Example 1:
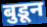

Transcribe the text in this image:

बुडून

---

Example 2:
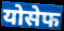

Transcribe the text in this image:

योसेफ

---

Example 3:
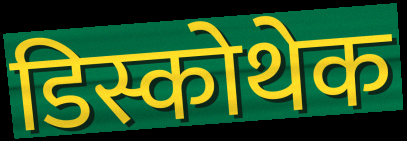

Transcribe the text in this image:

डिस्कोथेक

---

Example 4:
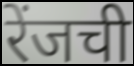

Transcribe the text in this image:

रेंजची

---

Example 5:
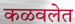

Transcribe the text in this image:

कळवलेत